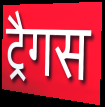
ट्रैगस